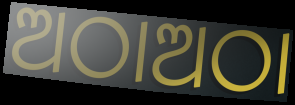
ଅଠାଅଠା